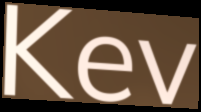
Kev